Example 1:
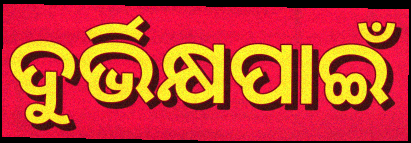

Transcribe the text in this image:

ଦୁର୍ଭିକ୍ଷପାଇଁ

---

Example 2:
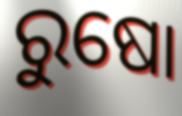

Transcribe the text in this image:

ରୁଷୋ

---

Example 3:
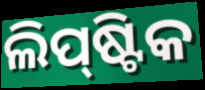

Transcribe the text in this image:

ଲିପ୍‌ଷ୍ଟିକ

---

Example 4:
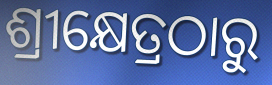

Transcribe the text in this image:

ଶ୍ରୀକ୍ଷେତ୍ରଠାରୁ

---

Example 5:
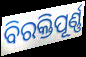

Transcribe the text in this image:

ବିରକ୍ତିପୂର୍ଣ୍ଣ